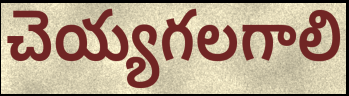
చెయ్యగలగాలి